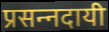
प्रसन्नदायी